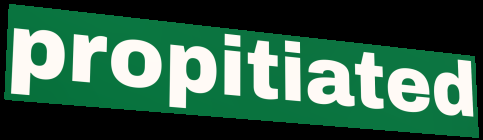
propitiated